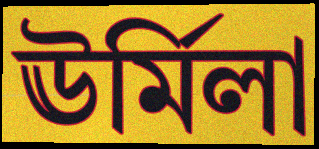
ঊর্মিলা